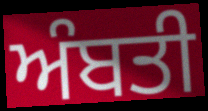
ਅੰਬਤੀ